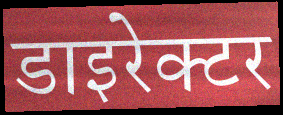
डाइरेक्टर